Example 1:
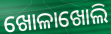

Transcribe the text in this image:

ଖୋଳାଖୋଲି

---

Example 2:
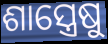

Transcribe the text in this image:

ଶାସ୍ତ୍ରେଷୁ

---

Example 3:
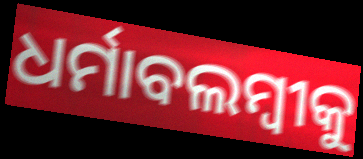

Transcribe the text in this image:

ଧର୍ମାବଲମ୍ବୀକୁ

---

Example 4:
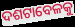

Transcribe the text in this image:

ଦଶଟାବେଳକୁ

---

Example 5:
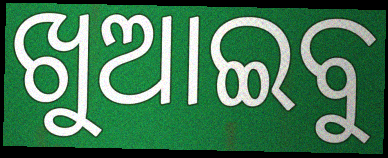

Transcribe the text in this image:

ଖୁଆଇବୁ